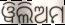
ୱିଲିଅମ